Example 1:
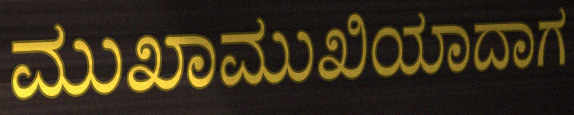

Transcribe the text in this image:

ಮುಖಾಮುಖಿಯಾದಾಗ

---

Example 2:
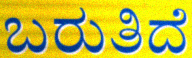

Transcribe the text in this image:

ಬರುತಿದೆ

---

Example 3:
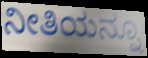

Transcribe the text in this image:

ನೀತಿಯನ್ನೂ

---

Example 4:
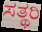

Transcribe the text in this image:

ಸತ್ಥರಿ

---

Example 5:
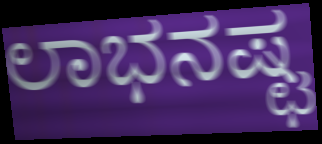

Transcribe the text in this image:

ಲಾಭನಷ್ಟ